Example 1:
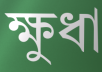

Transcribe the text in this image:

ক্ষুধা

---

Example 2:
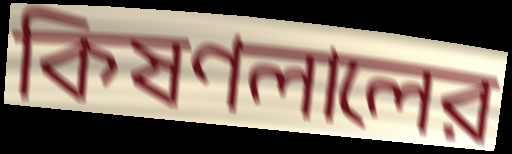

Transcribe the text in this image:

কিষণলালের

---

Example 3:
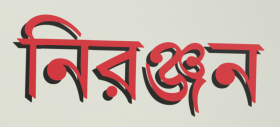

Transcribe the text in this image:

নিরঞ্জন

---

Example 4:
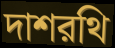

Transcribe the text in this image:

দাশরথি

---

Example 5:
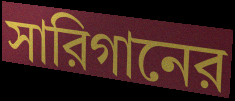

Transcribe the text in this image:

সারিগানের